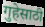
गुहेसाठी